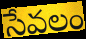
సేవలం